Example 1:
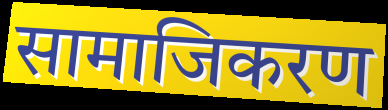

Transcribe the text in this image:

सामाजिकरण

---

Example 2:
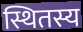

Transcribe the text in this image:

स्थितस्य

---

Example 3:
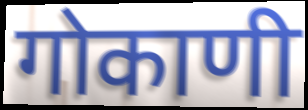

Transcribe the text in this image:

गोकाणी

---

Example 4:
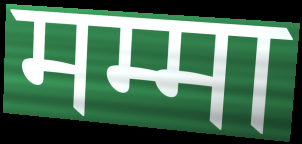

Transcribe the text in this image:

मम्मा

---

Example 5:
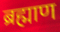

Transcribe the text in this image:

ब्रह्माण